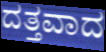
ದತ್ತವಾದ